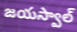
జయస్వాల్